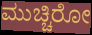
ಮುಚ್ಚಿರೋ